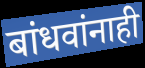
बांधवांनाही